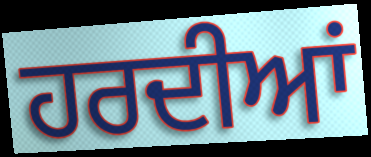
ਹਰਦੀਆਂ